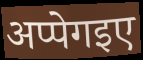
अप्पेगइए